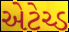
એટેચ્ડ